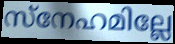
സ്നേഹമില്ലേ